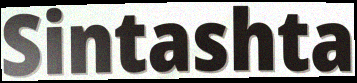
Sintashta